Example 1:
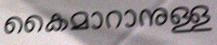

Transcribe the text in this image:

കൈമാറാനുള്ള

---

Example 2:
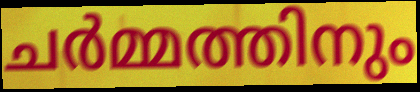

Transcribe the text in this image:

ചർമ്മത്തിനും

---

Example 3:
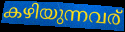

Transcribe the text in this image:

കഴിയുന്നവര്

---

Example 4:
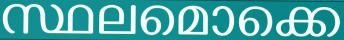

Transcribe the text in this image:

സ്ഥലമൊക്കെ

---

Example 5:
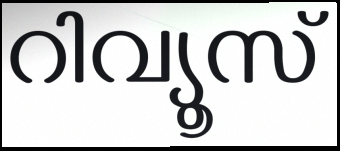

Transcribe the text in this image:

റിവ്യൂസ്